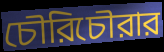
চৌরিচৌরার